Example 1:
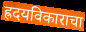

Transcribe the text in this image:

ह्रदयविकाराचा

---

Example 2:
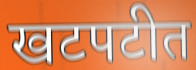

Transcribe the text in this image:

खटपटीत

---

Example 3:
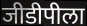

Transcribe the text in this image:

जीडीपीला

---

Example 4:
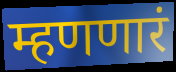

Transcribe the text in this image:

म्हणणारं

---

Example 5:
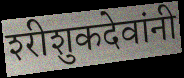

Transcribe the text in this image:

श्रीशुकदेवांनी